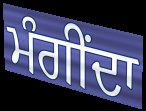
ਮੰਗੀਂਦਾ